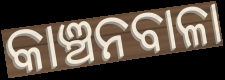
କାଞ୍ଚନବାଳା